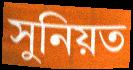
সুনিয়ত